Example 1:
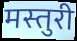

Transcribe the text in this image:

मस्तुरी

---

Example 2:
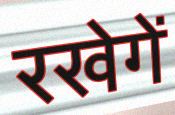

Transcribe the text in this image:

रखेगें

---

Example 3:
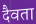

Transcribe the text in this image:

दैवता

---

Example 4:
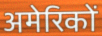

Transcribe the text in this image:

अमेरिकों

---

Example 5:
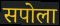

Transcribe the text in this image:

सपोला